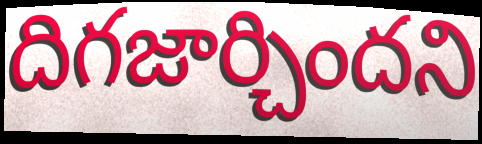
దిగజార్చిందని